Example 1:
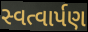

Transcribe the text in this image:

સ્વત્વાર્પણ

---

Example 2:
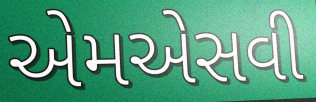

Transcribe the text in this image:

એમએસવી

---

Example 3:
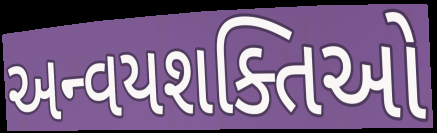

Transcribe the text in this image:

અન્વયશક્તિઓ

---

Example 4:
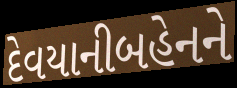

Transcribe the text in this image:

દેવયાનીબહેનને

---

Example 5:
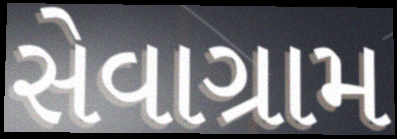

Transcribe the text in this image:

સેવાગ્રામ